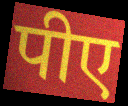
पीए